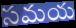
సమయ